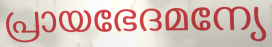
പ്രായഭേദമന്യേ